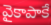
వైకాపాకే